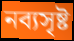
নব্যসৃষ্ট